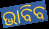
ଭାବିବ